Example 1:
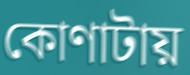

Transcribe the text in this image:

কোণাটায়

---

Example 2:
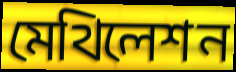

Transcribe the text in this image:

মেথিলেশন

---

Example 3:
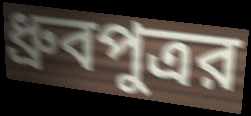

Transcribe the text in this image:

ধ্রুবপুত্রর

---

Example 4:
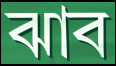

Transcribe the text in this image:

ঝাব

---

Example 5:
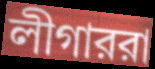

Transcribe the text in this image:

লীগাররা